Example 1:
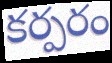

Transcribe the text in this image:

కర్పరం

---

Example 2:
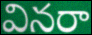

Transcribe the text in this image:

వినరా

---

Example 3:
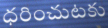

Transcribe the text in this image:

ధరించుటకు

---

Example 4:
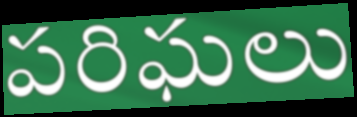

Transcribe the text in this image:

పరిఘలు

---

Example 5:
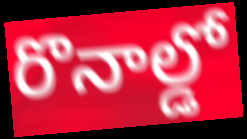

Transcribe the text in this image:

రొనాల్డో